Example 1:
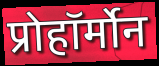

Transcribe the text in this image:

प्रोहॉर्मोन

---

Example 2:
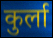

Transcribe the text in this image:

कुर्ला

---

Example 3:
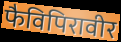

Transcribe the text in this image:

फैविपिरावीर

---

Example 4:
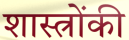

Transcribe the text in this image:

शास्त्रोंकी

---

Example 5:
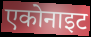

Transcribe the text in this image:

एकोनाइट